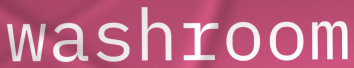
washroom